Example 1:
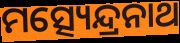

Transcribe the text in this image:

ମତ୍ସ୍ୟେନ୍ଦ୍ରନାଥ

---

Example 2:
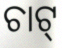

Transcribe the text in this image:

ଚାଟ୍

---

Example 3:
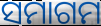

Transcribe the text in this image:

ସମାଗମ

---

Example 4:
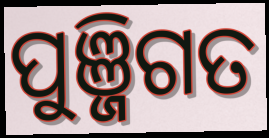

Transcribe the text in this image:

ପୁଞ୍ଜିଗତ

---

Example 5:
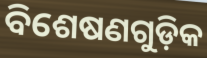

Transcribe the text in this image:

ବିଶେଷଣଗୁଡ଼ିକ